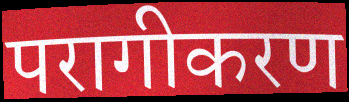
परागीकरण